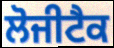
ਲੋਜੀਟੈਕ